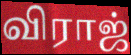
விராஜ்